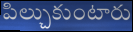
పిల్చుకుంటారు